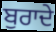
ਬੁਰਾਦੇ